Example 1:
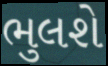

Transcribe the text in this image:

ભુલશે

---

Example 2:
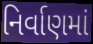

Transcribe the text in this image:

નિર્વાણમાં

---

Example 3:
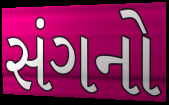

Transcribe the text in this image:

સંગનો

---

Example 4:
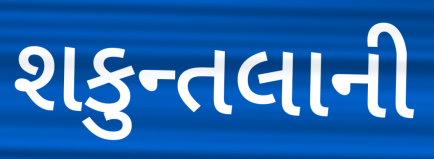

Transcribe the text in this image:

શકુન્તલાની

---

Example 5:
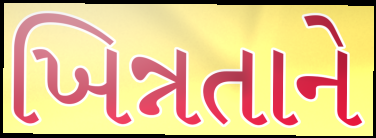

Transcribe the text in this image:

ખિન્નતાને